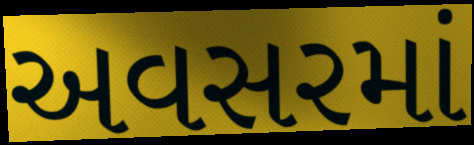
અવસરમાં